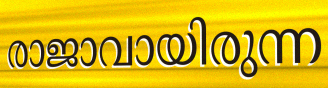
രാജാവായിരുന്ന